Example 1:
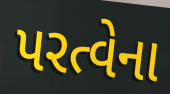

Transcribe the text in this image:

પરત્વેના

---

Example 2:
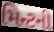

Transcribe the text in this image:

મિન્ટની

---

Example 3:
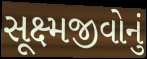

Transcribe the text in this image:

સૂક્ષ્મજીવોનું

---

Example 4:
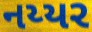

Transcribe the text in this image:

નય્યર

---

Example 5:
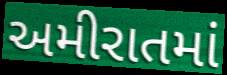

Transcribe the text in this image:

અમીરાતમાં